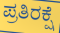
ಪ್ರತಿರಕ್ಷೆ